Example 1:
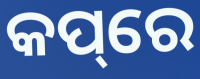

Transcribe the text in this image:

କପ୍‌ରେ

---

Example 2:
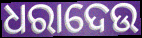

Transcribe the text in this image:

ଧରାଦେଉ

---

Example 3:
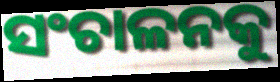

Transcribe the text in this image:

ସଂଚାଳନକୁ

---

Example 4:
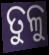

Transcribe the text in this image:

ତୁଳୁ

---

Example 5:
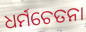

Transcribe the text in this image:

ଧର୍ମଚେତନା